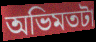
অভিমতটা